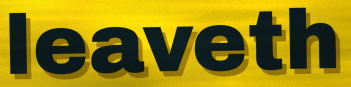
leaveth